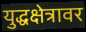
युद्धक्षेत्रावर